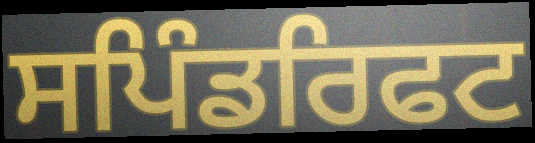
ਸਪਿੰਡਰਿਫਟ